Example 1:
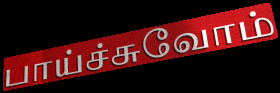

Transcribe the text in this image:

பாய்ச்சுவோம்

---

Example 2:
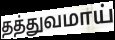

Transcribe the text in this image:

தத்துவமாய்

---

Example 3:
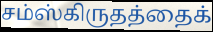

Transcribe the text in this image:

சம்ஸ்கிருதத்தைக்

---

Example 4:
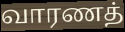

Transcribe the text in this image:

வாரணத்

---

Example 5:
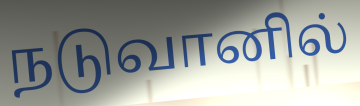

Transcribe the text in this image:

நடுவானில்